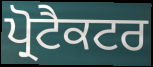
ਪ੍ਰੋਟੈਕਟਰ